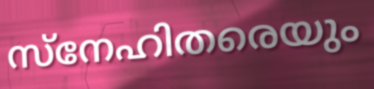
സ്നേഹിതരെയും